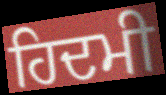
ਹਿਦਮੀ